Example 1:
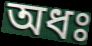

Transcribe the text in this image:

অধঃ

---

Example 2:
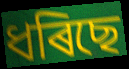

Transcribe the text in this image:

ধৰিছে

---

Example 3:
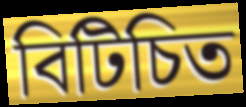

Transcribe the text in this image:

বিটিচিত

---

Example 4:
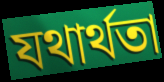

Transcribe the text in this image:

যথাৰ্থতা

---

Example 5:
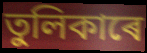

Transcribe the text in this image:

তুলিকাৰে